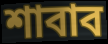
শাবাব